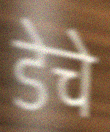
डेचे